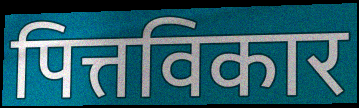
पित्तविकार